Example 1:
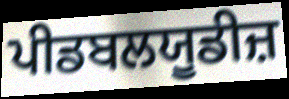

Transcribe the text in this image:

ਪੀਡਬਲਯੂਡੀਜ਼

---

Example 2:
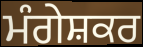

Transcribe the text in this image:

ਮੰਗੇਸ਼ਕਰ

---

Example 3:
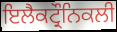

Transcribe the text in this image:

ਇਲੈਕਟ੍ਰੌਨਿਕਲੀ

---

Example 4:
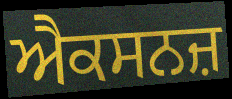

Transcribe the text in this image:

ਐਕਸਨਜ਼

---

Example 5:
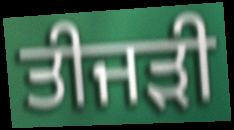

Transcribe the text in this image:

ਤੀਜੜੀ